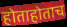
होताहोताच